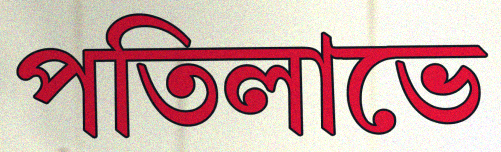
পতিলাভে